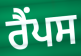
ਰੈਂਪਸ